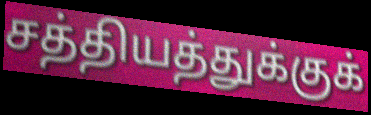
சத்தியத்துக்குக்